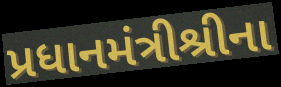
પ્રધાનમંત્રીશ્રીના